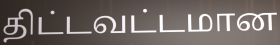
திட்டவட்டமான